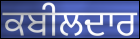
ਕਬੀਲਦਾਰ